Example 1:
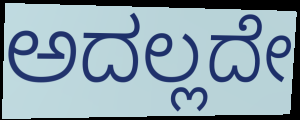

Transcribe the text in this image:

ಅದಲ್ಲದೇ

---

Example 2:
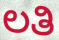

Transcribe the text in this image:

ಲತಿ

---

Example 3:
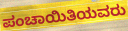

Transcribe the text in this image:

ಪಂಚಾಯಿತಿಯವರು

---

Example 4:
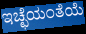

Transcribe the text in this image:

ಇಚ್ಛೆಯಂತೆಯೆ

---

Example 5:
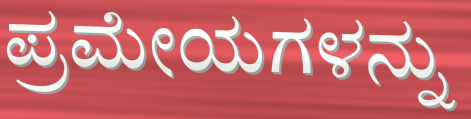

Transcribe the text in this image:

ಪ್ರಮೇಯಗಳನ್ನು